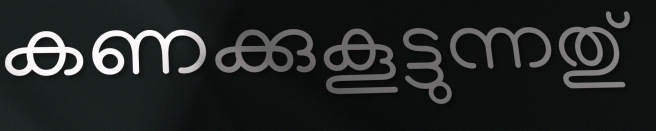
കണക്കുകൂട്ടുന്നതു്